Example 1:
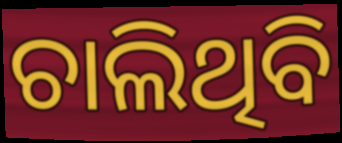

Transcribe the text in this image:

ଚାଲିଥିବି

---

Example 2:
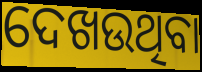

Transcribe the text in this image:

ଦେଖଉଥିବା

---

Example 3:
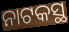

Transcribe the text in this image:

ନାଟକସ୍ଥ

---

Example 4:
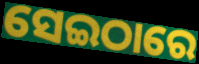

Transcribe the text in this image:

ସେଇଠାରେ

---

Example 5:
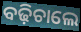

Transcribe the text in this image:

ବଢ଼ିଚାଲେ